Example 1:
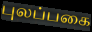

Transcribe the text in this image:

புலப்பகை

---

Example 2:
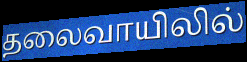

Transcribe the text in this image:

தலைவாயிலில்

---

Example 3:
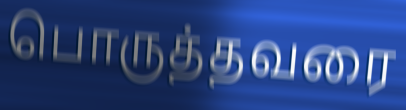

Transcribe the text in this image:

பொருத்தவரை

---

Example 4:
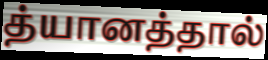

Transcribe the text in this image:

த்யானத்தால்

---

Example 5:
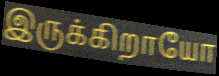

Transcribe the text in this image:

இருக்கிறாயோ